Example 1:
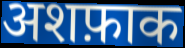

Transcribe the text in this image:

अशफ़ाक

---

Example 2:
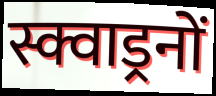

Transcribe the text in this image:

स्क्वाड्रनों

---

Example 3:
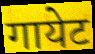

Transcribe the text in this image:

गायेट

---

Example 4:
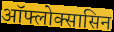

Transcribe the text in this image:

ऑफ्लोक्सासिन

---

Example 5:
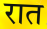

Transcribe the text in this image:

रात